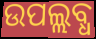
ଉପଲ୍ଲବ୍ଧ